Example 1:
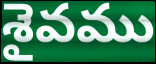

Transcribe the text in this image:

శైవము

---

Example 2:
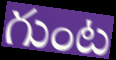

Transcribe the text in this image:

గుంట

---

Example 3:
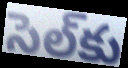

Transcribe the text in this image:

సెల్‌కు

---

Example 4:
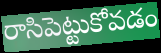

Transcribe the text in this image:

రాసిపెట్టుకోవడం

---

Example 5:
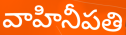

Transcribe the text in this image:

వాహినీపతి